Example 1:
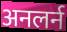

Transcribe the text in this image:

अनलर्न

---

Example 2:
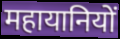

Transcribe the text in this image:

महायानियों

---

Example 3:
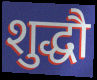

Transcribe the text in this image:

शुद्धौ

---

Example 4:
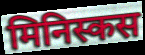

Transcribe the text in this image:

मिनिस्कस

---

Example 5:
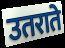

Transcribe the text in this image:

उतराते